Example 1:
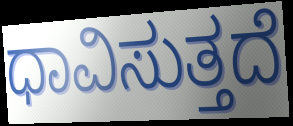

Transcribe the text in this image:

ಧಾವಿಸುತ್ತದೆ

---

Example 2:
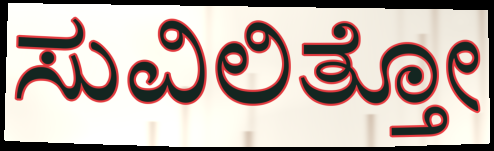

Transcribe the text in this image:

ಸುವಿಲಿತ್ತೋ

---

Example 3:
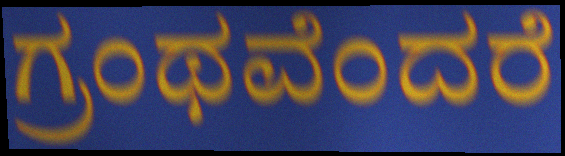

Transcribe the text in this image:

ಗ್ರಂಥವೆಂದರೆ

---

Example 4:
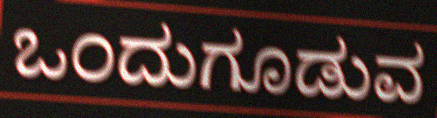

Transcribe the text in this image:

ಒಂದುಗೂಡುವ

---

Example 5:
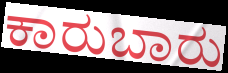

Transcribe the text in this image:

ಕಾರುಬಾರು